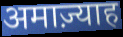
अमाज़्याह